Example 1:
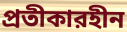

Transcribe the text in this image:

প্রতীকারহীন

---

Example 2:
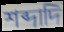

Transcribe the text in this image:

শব্দাদি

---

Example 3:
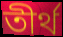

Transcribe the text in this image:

তীর্থ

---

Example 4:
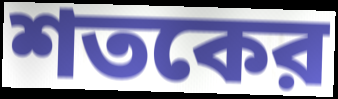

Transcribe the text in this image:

শতকের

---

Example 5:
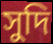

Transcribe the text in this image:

সুদি